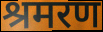
श्रमरण